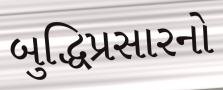
બુદ્ધિપ્રસારનો